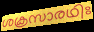
ശക്രസാരഥിഃ